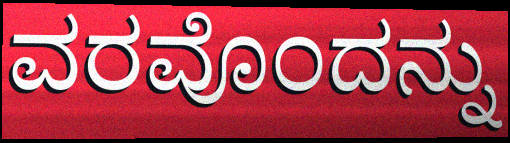
ವರವೊಂದನ್ನು